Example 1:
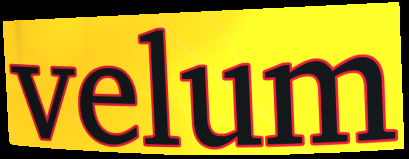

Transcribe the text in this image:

velum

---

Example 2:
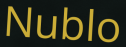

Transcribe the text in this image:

Nublo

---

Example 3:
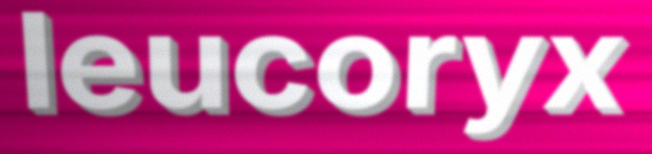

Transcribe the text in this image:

leucoryx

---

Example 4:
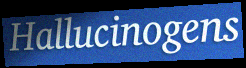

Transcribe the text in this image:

Hallucinogens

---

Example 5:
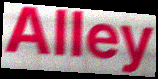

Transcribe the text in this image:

Alley